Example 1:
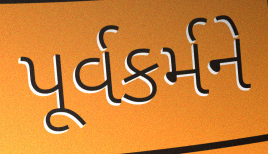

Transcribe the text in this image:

પૂર્વકર્મને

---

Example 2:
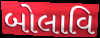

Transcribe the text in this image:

બોલાવિ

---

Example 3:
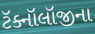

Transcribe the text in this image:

ટૅક્નૉલૉજીના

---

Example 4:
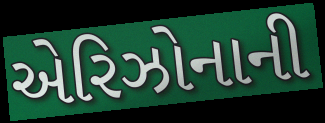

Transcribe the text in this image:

એરિઝોનાની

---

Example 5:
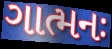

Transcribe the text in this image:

ગાત્મનઃ